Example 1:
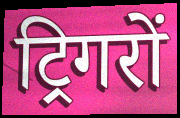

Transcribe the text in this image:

ट्रिगरों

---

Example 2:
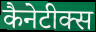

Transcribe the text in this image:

कैनेटीक्स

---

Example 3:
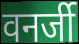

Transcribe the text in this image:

वनर्जी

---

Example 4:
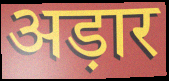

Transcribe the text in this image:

अड़ार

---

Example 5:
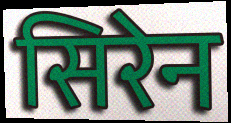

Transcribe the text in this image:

सिरेन